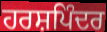
ਹਰਸ਼ਪਿੰਦਰ